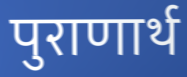
पुराणार्थ